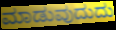
ಮಾಡುವುದುದು